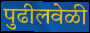
पुढीलवेळी